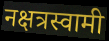
नक्षत्रस्वामी